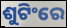
ଶୁଟିଂରେ